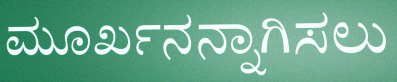
ಮೂರ್ಖನನ್ನಾಗಿಸಲು